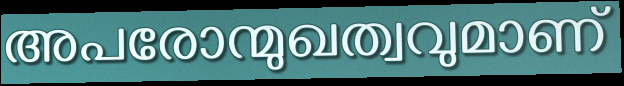
അപരോന്മുഖത്വവുമാണ്